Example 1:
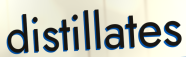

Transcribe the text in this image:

distillates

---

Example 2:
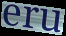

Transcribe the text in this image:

eru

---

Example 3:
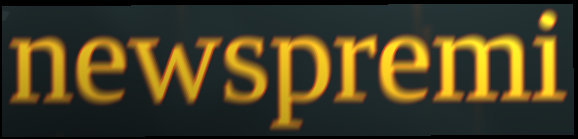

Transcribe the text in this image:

newspremi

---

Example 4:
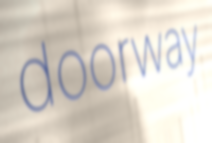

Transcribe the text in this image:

doorway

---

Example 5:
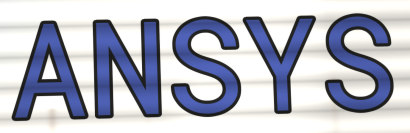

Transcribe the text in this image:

ANSYS